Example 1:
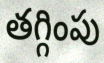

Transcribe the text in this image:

తగ్గింపు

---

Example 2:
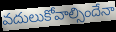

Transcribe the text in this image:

వదులుకోవాల్సిందేనా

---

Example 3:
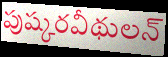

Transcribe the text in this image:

పుష్కరవీథులన్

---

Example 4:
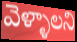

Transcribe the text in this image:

వెళ్ళాలని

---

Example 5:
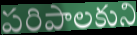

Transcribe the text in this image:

పరిపాలకుని